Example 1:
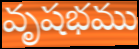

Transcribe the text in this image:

వృషభము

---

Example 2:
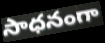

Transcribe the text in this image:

సాధనంగా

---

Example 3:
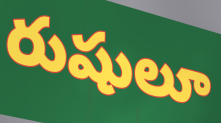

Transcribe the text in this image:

రుషులూ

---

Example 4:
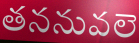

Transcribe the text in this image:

తననువలె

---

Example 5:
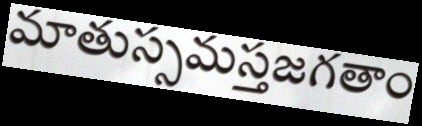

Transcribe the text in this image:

మాతుస్సమస్తజగతాం